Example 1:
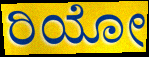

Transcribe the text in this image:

ರಿಯೋ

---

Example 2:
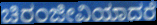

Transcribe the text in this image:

ಚಿರಂಜೀವಿಯಾದರೆ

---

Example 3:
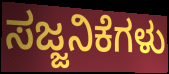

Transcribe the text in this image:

ಸಜ್ಜನಿಕೆಗಳು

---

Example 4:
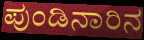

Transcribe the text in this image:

ಪುಂಡಿನಾರಿನ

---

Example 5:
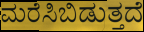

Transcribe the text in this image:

ಮರೆಸಿಬಿಡುತ್ತದೆ